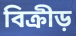
বিক্রীড়